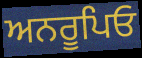
ਅਨਰੂਪਿਓ